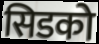
सिडको